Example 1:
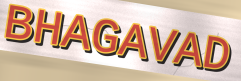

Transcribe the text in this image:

BHAGAVAD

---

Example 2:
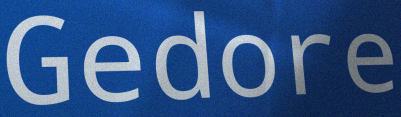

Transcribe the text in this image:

Gedore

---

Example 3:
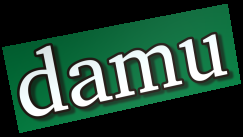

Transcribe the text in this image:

damu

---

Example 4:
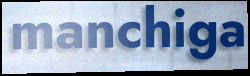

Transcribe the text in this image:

manchiga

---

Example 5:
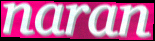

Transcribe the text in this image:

naran